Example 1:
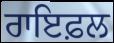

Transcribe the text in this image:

ਰਾਇਫ਼ਲ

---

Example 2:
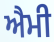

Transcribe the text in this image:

ਐਮੀ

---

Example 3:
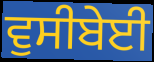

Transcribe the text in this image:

ਵੁਸੀਬੇਈ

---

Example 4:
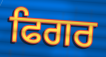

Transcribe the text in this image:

ਫਿਗਰ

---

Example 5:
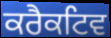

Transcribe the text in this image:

ਕਰੈਕਟਿਵ